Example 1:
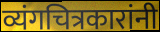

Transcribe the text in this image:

व्यंगचित्रकारांनी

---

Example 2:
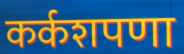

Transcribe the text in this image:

कर्कशपणा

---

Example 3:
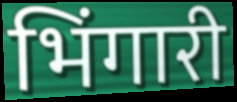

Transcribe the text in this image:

भिंगारी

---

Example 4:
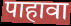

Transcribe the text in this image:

पाहावा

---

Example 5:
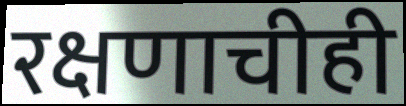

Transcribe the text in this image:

रक्षणाचीही